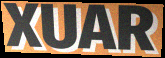
XUAR